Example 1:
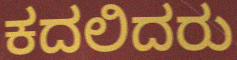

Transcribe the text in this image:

ಕದಲಿದರು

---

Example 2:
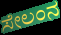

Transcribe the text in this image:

ಸೇಲಂನ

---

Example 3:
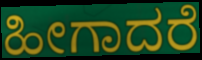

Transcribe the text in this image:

ಹೀಗಾದರೆ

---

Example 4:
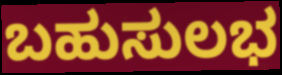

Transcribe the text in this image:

ಬಹುಸುಲಭ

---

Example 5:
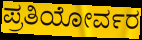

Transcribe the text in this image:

ಪ್ರತಿಯೋರ್ವರ